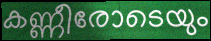
കണ്ണീരോടെയും